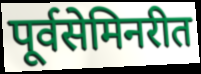
पूर्वसेमिनरीत